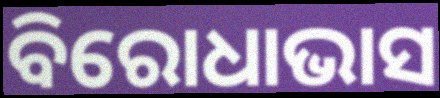
ବିରୋଧାଭାସ